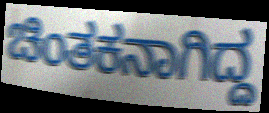
ಚಿಂತಕನಾಗಿದ್ದ